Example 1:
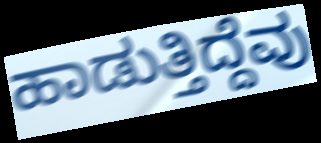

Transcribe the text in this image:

ಹಾಡುತ್ತಿದ್ದೆವು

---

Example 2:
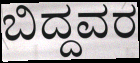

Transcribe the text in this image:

ಬಿದ್ದವರ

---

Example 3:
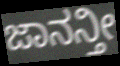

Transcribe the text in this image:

ಜಾನನ್ತೀ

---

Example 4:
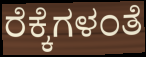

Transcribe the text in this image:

ರೆಕ್ಕೆಗಳಂತೆ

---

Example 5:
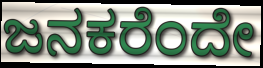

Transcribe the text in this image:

ಜನಕರೆಂದೇ